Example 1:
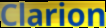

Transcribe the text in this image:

Clarion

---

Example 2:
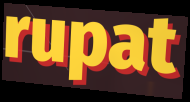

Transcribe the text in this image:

rupat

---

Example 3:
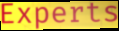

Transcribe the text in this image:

Experts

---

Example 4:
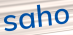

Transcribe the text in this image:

saho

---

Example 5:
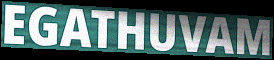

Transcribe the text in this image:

EGATHUVAM